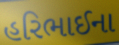
હરિભાઈના